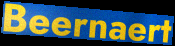
Beernaert